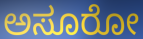
ಅಸೂರೋ